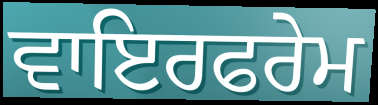
ਵਾਇਰਫਰੇਮ